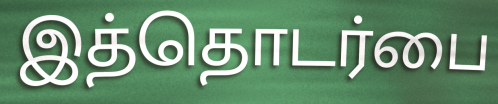
இத்தொடர்பை